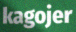
kagojer